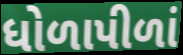
ધોળાપીળાં